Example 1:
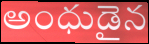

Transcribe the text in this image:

అంధుడైన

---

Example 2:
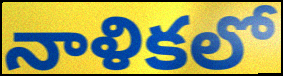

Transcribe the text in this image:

నాళికలో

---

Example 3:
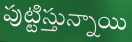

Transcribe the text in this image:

పుట్టిస్తున్నాయి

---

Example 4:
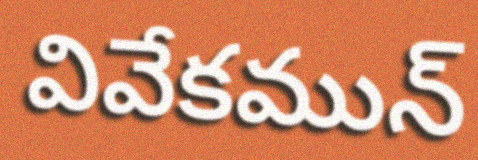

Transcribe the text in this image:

వివేకమున్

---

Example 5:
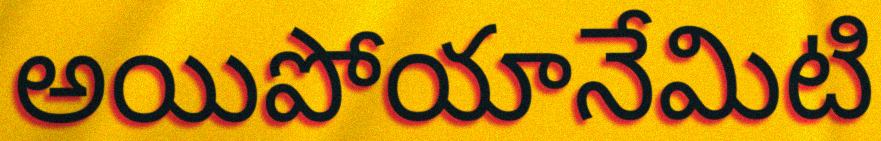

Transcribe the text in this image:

అయిపోయానేమిటి